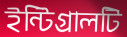
ইন্টিগ্রালটি